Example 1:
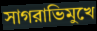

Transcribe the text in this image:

সাগরাভিমুখে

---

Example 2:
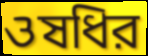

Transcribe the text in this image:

ওষধির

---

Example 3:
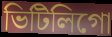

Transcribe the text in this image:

ভিটিলিগো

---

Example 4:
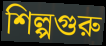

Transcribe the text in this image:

শিল্পগুরু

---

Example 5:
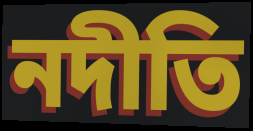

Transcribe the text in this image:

নদীতি